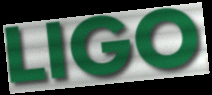
LIGO